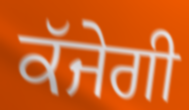
ਕੱਜੇਗੀ